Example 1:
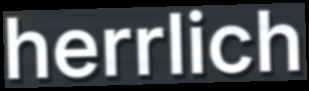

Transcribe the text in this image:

herrlich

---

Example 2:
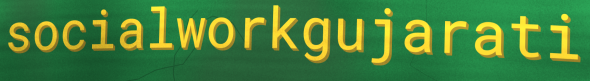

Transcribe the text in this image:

socialworkgujarati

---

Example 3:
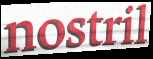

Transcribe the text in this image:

nostril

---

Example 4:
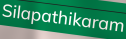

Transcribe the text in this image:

Silapathikaram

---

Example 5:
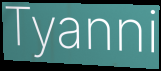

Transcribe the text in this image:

Tyanni